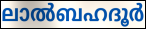
ലാൽബഹദൂർ